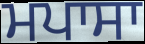
ਮਪਾਸਾ